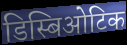
डिस्बिओटिक